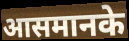
आसमानके